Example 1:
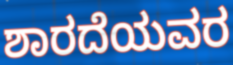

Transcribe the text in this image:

ಶಾರದೆಯವರ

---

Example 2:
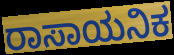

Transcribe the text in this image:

ರಾಸಾಯನಿಕ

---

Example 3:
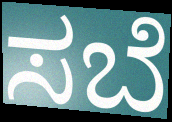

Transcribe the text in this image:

ಸಬೆ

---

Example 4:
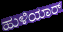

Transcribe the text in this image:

ಹುಳಿಯಾರ್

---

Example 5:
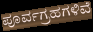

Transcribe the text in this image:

ಪೂರ್ವಗ್ರಹಗಳಿವೆ